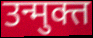
उन्मुक्त